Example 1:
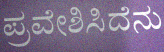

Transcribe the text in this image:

ಪ್ರವೇಶಿಸಿದೆನು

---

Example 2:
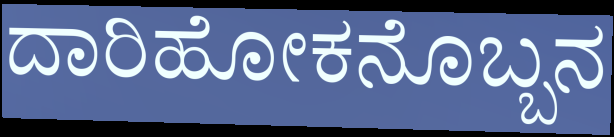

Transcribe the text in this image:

ದಾರಿಹೋಕನೊಬ್ಬನ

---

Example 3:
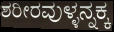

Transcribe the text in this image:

ಶರೀರವುಳ್ಳನ್ನಕ್ಕ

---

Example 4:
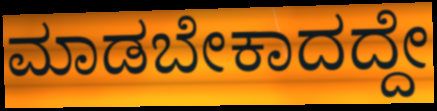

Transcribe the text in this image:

ಮಾಡಬೇಕಾದದ್ದೇ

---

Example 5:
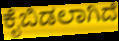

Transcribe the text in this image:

ಕೈಬಿಡಲಾಗಿದೆ